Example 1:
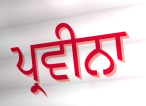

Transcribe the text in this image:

ਪ੍ਰਵੀਨਾ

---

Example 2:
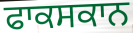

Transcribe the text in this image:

ਫਾਕਸਕਾਨ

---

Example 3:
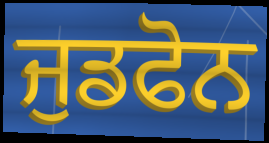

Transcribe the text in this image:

ਜੁਡਫੋਨ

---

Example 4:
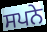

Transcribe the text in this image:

ਸਪਨੇ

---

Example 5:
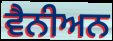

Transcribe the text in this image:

ਵੈਨੀਅਨ